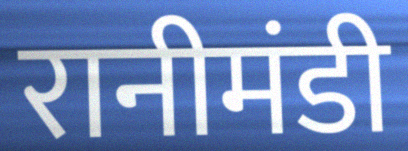
रानीमंडी